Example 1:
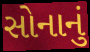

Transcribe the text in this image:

સોનાનું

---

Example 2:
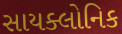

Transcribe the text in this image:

સાયક્લોનિક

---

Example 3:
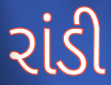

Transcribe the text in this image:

રાંડી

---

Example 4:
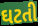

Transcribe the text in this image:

ઘટતી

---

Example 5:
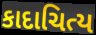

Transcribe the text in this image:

કાદાચિત્ય